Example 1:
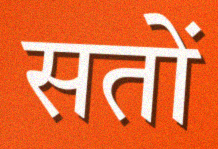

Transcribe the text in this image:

सतों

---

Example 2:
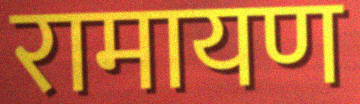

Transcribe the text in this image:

रामायण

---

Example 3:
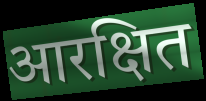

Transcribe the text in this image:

आरक्षित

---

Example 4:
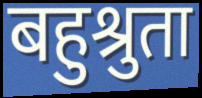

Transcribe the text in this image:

बहुश्रुता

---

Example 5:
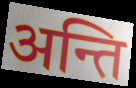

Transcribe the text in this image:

अन्ति